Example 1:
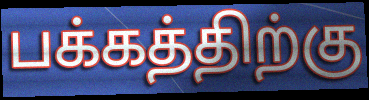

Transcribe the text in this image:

பக்கத்திற்கு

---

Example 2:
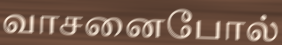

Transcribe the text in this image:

வாசனைபோல்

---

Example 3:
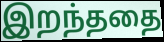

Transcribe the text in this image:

இறந்ததை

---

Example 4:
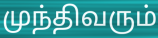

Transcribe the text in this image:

முந்திவரும்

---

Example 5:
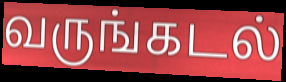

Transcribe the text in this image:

வருங்கடல்